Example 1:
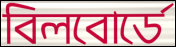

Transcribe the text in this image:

বিলবোর্ডে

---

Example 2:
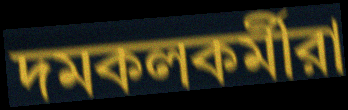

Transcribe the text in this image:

দমকলকর্মীরা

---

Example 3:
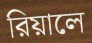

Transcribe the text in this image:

রিয়ালে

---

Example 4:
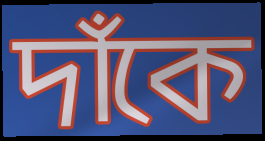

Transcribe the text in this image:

দাঁকে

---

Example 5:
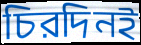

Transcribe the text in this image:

চিরদিনই